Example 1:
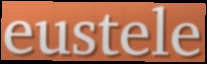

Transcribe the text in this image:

eustele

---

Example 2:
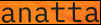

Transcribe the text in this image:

anatta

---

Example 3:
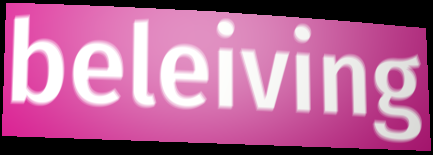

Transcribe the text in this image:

beleiving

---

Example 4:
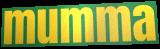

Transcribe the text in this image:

mumma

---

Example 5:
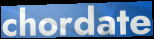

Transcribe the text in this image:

chordate